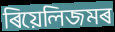
ৰিয়েলিজমৰ